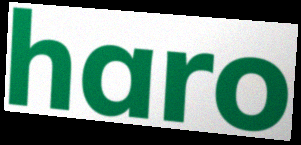
haro